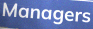
Managers